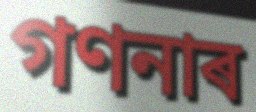
গণনাৰ